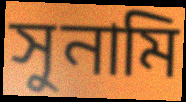
সুনামি